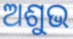
ଅଶୁଭ